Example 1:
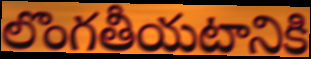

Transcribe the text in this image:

లొంగతీయటానికి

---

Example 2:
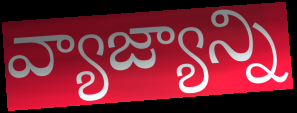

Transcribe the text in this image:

వ్యాజ్యాన్ని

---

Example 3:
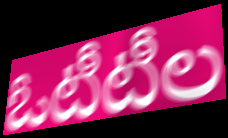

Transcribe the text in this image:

ఓటీటీల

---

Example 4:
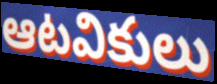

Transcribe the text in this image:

ఆటవికులు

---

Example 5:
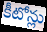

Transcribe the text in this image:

కీటోన్లు